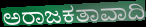
ಅರಾಜಕತಾವಾದಿ